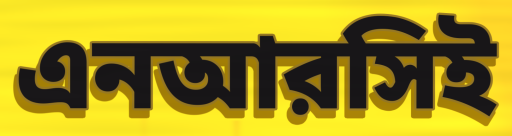
এনআরসিই